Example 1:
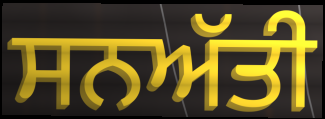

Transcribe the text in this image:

ਸਨਅੱਤੀ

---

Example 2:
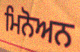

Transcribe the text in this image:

ਮਿਨੋਅਨ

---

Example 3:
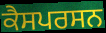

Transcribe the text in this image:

ਕੈਸਪਰਸਨ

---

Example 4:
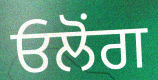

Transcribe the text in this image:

ਓਲੋਂਗ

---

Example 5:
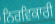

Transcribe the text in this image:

ਨਿਰਵਿਕਾਰੀ